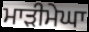
ਮਾੜੀਮੇਘਾ